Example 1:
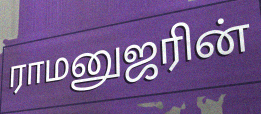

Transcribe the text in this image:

ராமனுஜரின்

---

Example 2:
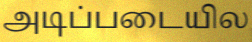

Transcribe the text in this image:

அடிப்படையில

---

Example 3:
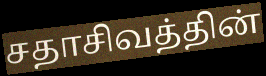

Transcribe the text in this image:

சதாசிவத்தின்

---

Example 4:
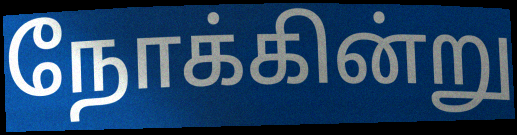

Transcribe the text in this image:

நோக்கின்று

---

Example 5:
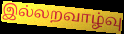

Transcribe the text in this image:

இல்லறவாழ்வு